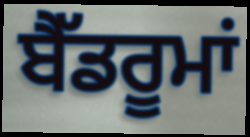
ਬੈੱਡਰੂਮਾਂ